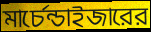
মার্চেন্ডাইজারের